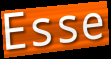
Esse